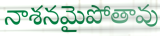
నాశనమైపోతావు